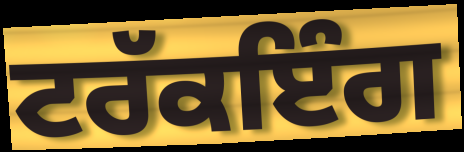
ਟਰੱਕਇੰਗ